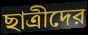
ছাত্রীদের